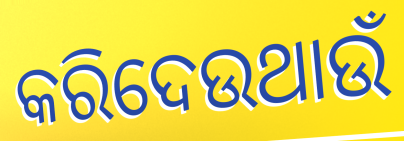
କରିଦେଉଥାଉଁ